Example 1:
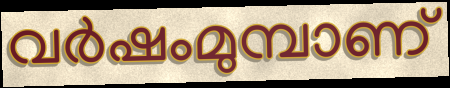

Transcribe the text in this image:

വർഷംമുമ്പാണ്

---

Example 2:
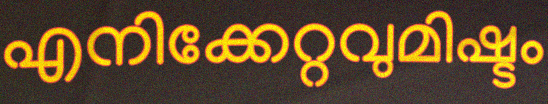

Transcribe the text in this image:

എനിക്കേറ്റവുമിഷ്ടം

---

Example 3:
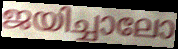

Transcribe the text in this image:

ജയിച്ചാലോ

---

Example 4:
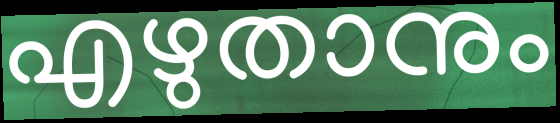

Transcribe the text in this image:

എഴുതാനും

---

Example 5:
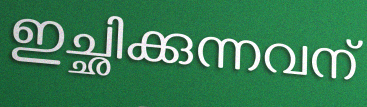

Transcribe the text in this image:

ഇച്ഛിക്കുന്നവന്